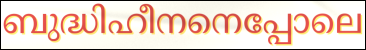
ബുദ്ധിഹീനനെപ്പോലെ